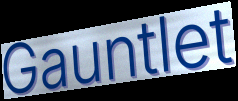
Gauntlet